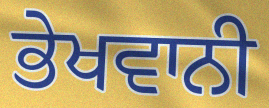
ਭੇਖਵਾਨੀ